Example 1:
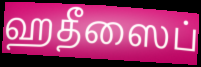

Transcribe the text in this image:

ஹதீஸைப்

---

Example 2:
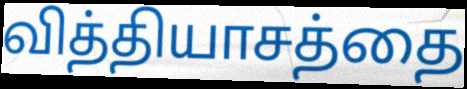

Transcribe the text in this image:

வித்தியாசத்தை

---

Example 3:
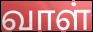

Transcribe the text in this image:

வாள்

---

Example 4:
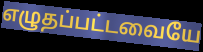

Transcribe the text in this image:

எழுதப்பட்டவையே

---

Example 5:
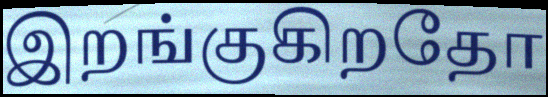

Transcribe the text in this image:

இறங்குகிறதோ